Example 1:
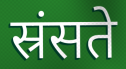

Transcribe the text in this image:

स्रंसते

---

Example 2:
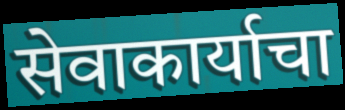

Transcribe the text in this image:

सेवाकार्याचा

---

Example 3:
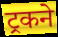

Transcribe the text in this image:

ट्रकने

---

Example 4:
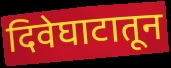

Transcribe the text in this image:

दिवेघाटातून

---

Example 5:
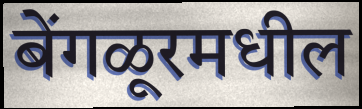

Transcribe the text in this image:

बेंगळूरमधील